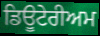
ਡਿਊਟੇਰੀਅਮ